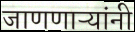
जाणणाऱ्यांनी